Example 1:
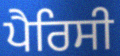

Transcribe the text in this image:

ਪੈਰਿਸੀ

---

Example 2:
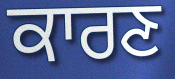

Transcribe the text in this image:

ਕਾਰਣ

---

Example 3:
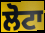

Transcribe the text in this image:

ਲੋਟਾ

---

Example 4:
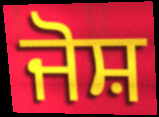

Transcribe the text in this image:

ਜੋਸ਼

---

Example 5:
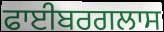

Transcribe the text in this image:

ਫਾਈਬਰਗਲਾਸ